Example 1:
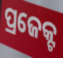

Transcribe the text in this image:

ପ୍ରଜେକ୍ଟ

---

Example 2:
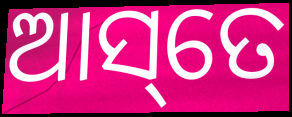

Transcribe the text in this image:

ଆସ୍‌ତେ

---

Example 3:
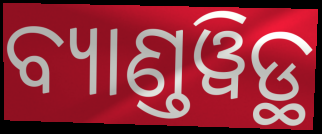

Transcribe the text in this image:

ବ୍ୟାଣ୍ଡୱିଡ୍ଥ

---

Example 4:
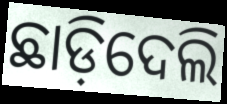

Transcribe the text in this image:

ଛାଡ଼ିଦେଲି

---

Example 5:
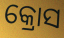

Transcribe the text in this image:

କ୍ରୋସ